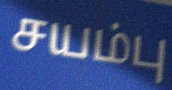
சயம்பு